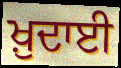
ਖ਼ੁਦਾਈ